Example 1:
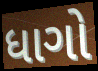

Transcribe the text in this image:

ધાગો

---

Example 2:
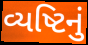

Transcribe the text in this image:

વ્યષ્ટિનું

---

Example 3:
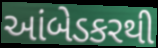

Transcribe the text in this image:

આંબેડકરથી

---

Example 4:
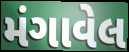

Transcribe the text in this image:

મંગાવેલ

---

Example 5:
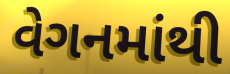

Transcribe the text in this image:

વેગનમાંથી